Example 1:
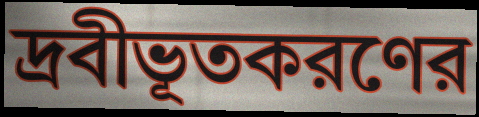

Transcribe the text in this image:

দ্রবীভূতকরণের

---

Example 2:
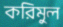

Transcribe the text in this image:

করিমুল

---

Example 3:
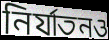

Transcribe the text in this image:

নির্যাতনও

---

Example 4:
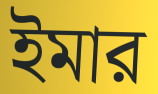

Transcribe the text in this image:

ইমার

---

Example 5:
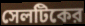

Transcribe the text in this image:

সেলটিকের